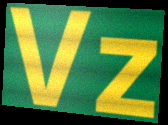
Vz